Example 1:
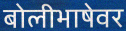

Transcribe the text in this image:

बोलीभाषेवर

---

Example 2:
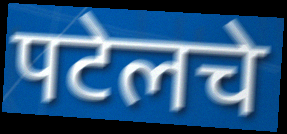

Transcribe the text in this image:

पटेलचे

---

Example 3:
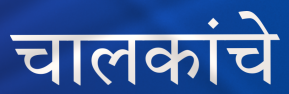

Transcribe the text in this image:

चालकांचे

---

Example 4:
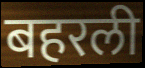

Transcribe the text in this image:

बहरली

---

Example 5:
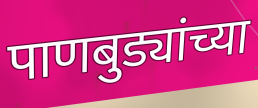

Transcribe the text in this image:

पाणबुड्यांच्या